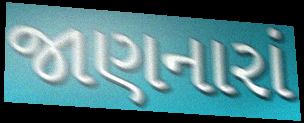
જાણનારાં